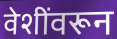
वेशींवरून